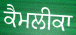
ਕੈਮਲੀਕਾ